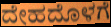
ದೇಹದೊಳಗೆ